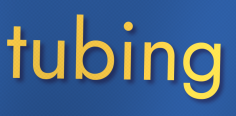
tubing